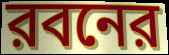
রবনের